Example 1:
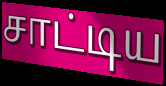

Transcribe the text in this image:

சாட்டிய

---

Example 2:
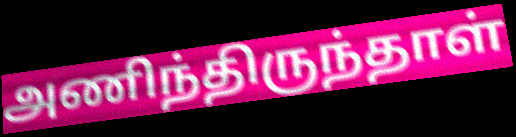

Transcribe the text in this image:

அணிந்திருந்தாள்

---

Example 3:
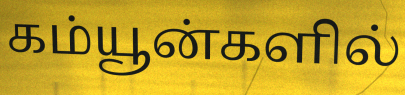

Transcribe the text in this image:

கம்யூன்களில்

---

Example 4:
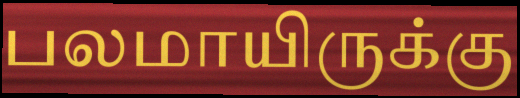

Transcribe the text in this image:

பலமாயிருக்கு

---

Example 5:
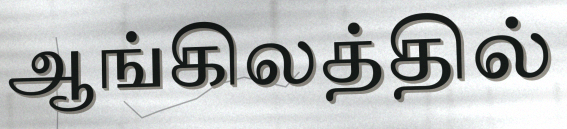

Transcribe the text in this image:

ஆங்கிலத்தில்